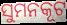
ସୁମନକୂଟ